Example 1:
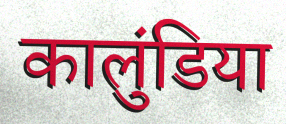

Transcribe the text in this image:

कालुंडिया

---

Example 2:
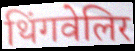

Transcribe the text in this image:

थिंगवेलिर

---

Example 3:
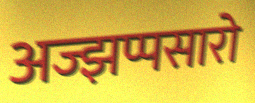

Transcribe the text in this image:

अज्झप्पसारो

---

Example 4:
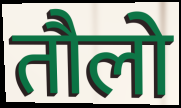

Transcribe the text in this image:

तौलो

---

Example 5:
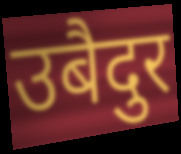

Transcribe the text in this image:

उबैदुर